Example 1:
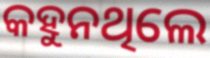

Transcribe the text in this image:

କହୁନଥିଲେ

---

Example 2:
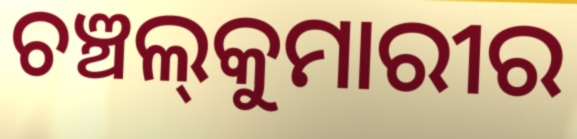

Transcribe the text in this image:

ଚଞ୍ଚଲ୍‍କୁମାରୀର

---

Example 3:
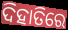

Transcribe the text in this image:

ଦିହାତିରେ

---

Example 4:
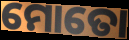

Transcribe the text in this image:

ମୋତୋ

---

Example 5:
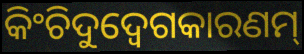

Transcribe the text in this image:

କିଂଚିଦୁଦ୍ବେଗକାରଣମ୍